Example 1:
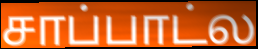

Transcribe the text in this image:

சாப்பாட்ல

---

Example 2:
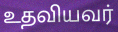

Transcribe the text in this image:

உதவியவர்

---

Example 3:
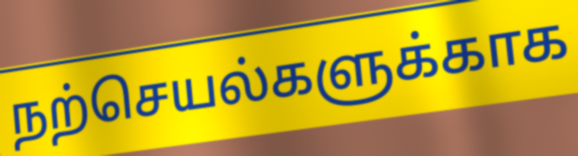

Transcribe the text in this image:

நற்செயல்களுக்காக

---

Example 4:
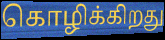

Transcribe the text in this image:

கொழிக்கிறது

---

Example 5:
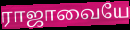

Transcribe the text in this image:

ராஜாவையே